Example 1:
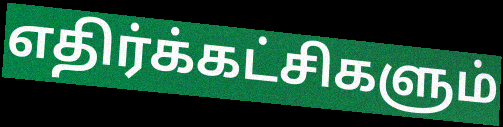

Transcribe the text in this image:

எதிர்க்கட்சிகளும்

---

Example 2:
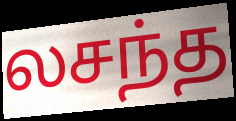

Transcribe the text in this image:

லசந்த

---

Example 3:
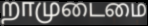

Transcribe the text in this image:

றாமுடைமை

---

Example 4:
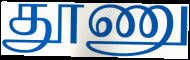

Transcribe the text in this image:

தூணு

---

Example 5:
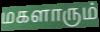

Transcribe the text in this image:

மகளாரும்